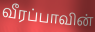
வீரப்பாவின்